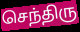
செந்திரு